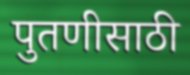
पुतणीसाठी